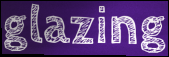
glazing